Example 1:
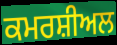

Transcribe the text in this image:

ਕਮਰਸ਼ੀਅਲ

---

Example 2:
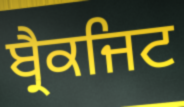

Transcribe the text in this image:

ਬ੍ਰੈਕਜਿਟ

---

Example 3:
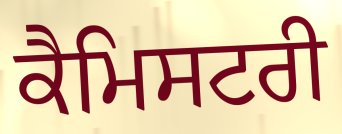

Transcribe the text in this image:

ਕੈਮਿਸਟਰੀ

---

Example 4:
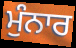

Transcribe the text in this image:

ਮੁੰਨਾਰ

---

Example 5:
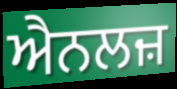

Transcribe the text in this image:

ਐਨਲਜ਼